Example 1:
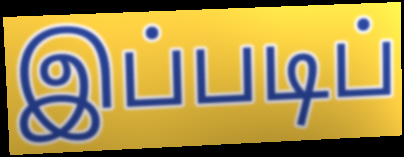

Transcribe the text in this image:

இப்படிப்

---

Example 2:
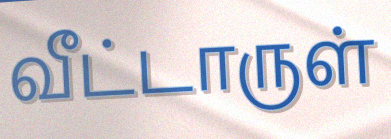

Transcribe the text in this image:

வீட்டாருள்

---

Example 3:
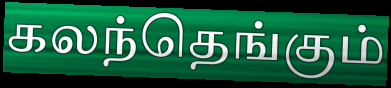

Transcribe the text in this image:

கலந்தெங்கும்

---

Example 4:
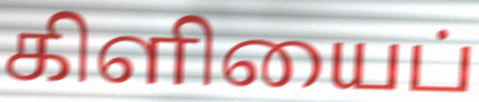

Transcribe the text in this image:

கிளியைப்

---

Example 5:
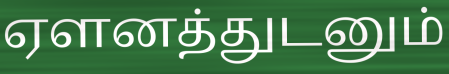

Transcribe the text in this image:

ஏளனத்துடனும்